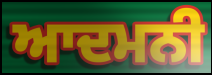
ਆਦਮਨੀ